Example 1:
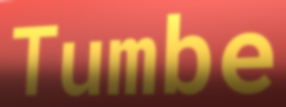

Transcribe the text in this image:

Tumbe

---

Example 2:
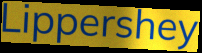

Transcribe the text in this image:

Lippershey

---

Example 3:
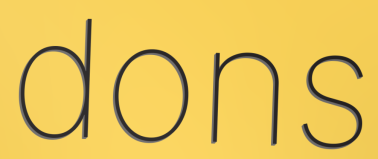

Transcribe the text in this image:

dons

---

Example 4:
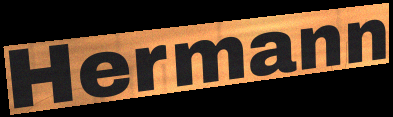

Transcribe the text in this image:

Hermann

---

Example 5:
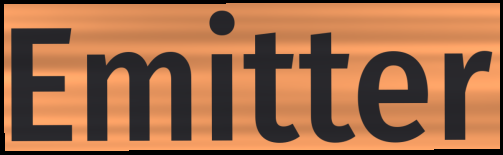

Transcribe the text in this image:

Emitter